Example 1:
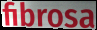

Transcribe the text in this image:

fibrosa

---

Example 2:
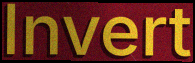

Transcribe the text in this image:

Invert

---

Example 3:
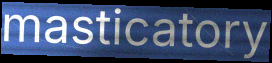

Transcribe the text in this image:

masticatory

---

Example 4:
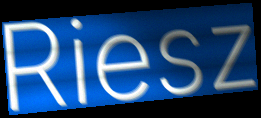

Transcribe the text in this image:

Riesz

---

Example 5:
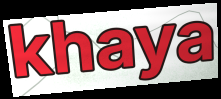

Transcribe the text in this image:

khaya